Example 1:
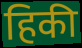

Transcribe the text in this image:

हिकी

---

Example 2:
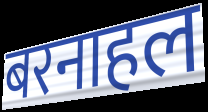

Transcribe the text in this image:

बरनाहल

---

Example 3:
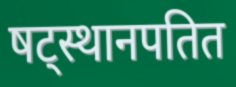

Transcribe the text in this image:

षट्स्थानपतित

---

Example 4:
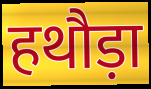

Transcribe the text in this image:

हथौड़ा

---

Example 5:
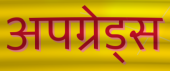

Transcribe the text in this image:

अपग्रेड्स